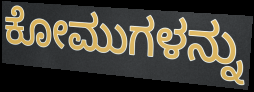
ಕೋಮುಗಳನ್ನು